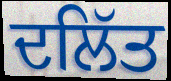
ਦਲਿੱਤ